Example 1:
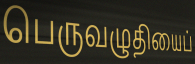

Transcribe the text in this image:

பெருவழுதியைப்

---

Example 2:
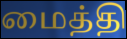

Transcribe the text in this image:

மைத்தி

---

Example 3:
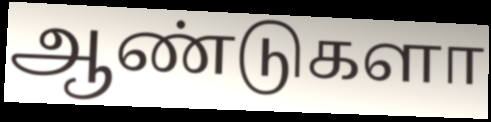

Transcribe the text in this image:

ஆண்டுகளா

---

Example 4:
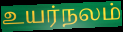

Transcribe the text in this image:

உயர்நலம்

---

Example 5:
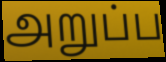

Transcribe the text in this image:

அறுப்ப